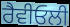
ਰੈਵੀਓਲੀ